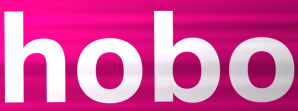
hobo